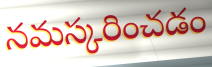
నమస్కరించడం